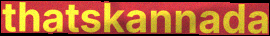
thatskannada